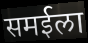
समईला